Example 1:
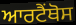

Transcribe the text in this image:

ਆਰਟੈਂਥੋਸ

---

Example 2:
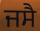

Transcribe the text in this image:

ਜਸੈ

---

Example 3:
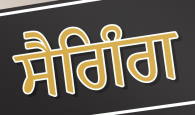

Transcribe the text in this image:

ਸੈਗਿੰਗ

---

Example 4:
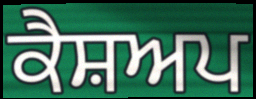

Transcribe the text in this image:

ਕੈਸ਼ਅਪ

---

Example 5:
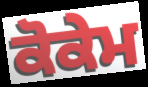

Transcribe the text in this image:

ਕੋਕੇਮ